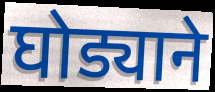
घोड्याने